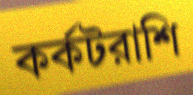
কর্কটরাশি